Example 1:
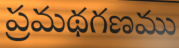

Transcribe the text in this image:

ప్రమథగణము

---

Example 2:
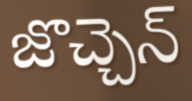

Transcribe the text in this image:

జొచ్చెన్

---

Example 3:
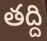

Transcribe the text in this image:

తద్ది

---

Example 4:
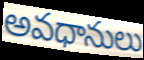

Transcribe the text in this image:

అవధానులు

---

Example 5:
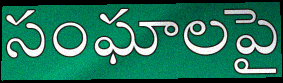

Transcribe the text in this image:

సంఘాలపై